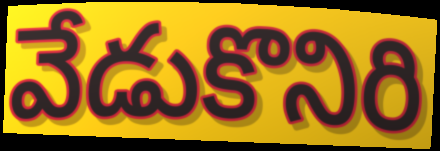
వేడుకొనిరి